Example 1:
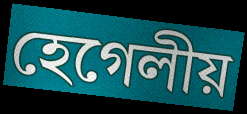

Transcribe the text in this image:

হেগেলীয়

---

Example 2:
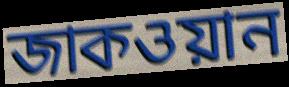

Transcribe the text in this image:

জাকওয়ান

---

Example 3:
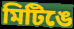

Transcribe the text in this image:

মিটিঙে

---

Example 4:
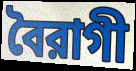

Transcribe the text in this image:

বৈরাগী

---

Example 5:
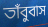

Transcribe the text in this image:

তাঁবুবাস